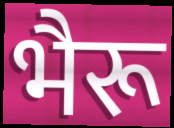
भैरू